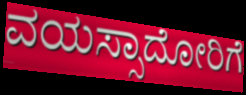
ವಯಸ್ಸಾದೋರಿಗೆ